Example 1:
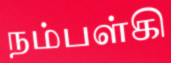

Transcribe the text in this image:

நம்பள்கி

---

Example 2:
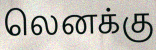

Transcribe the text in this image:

லெனக்கு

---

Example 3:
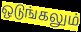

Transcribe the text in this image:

ஒடுங்கலும்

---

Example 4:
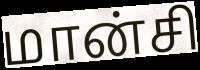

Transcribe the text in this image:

மான்சி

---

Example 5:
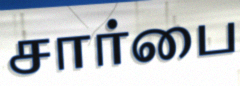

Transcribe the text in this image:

சார்பை